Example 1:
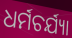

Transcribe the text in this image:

ଧର୍ମଚର୍ଯ୍ୟା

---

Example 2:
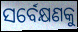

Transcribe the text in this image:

ସର୍ବେକ୍ଷଣକୁ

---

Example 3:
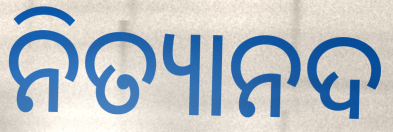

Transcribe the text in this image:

ନିତ୍ୟାନଦ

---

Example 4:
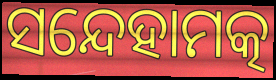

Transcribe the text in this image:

ସନ୍ଦେହାମତ୍କ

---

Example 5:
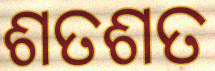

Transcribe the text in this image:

ଶତଶତ